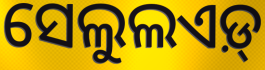
ସେଲୁଲଏଡ଼୍